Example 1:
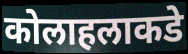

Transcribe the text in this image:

कोलाहलाकडे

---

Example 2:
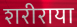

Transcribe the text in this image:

शरीराया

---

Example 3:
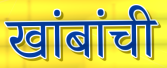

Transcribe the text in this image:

खांबांची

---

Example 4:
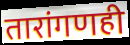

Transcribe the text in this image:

तारांगणही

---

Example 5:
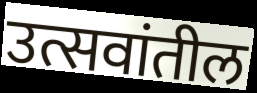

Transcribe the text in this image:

उत्सवांतील